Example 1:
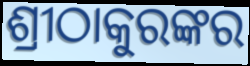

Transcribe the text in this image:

ଶ୍ରୀଠାକୁରଙ୍କର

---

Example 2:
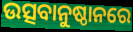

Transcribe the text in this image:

ଉତ୍ସବାନୁଷ୍ଠାନରେ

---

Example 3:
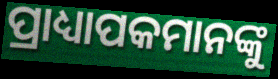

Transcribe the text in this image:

ପ୍ରାଧ୍ୟାପକମାନଙ୍କୁ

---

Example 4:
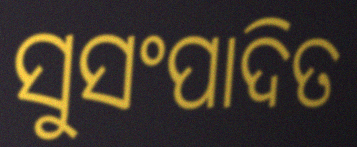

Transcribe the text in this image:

ସୁସଂପାଦିତ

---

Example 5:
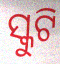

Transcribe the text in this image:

ସ୍କୁଟି